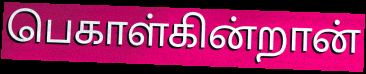
பெகாள்கின்றான்